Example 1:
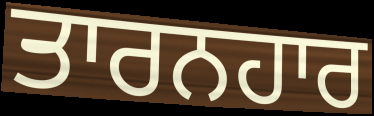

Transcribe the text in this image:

ਤਾਰਨਹਾਰ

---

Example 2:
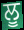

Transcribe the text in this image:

ਲੂ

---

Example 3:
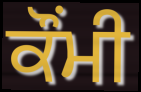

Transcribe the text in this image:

ਕੌਂਮੀ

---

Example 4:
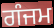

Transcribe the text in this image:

ਗੰਜਮ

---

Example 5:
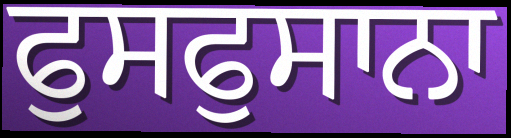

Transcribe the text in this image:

ਫੁਸਫੁਸਾਨਾ